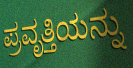
ಪ್ರವೃತ್ತಿಯನ್ನು